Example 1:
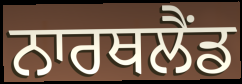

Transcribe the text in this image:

ਨਾਰਥਲੈਂਡ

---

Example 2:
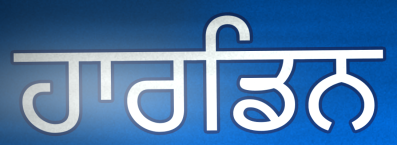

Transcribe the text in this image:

ਹਾਰਡਿਨ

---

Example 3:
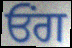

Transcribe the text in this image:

ਓਂਗ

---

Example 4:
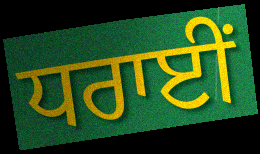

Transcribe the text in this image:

ਧਰਾਈਂ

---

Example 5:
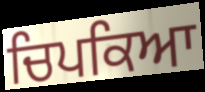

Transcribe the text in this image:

ਚਿਪਕਿਆ